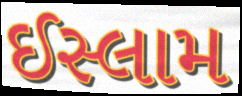
ઈસ્લામ